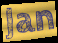
Jan